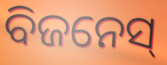
ବିଜନେସ୍